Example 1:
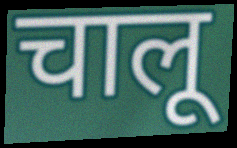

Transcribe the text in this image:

चालू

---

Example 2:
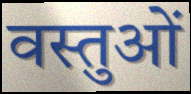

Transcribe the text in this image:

वस्‍तुओं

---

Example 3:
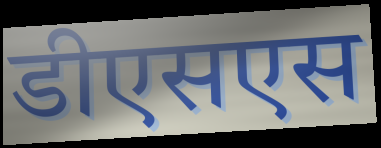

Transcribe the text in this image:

डीएसएस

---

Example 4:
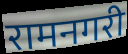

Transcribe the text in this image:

रामनगरी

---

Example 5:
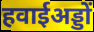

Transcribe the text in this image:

हवाईअड्डों